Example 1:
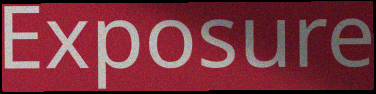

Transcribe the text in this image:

Exposure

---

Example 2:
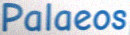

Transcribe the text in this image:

Palaeos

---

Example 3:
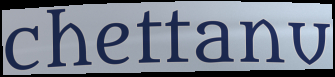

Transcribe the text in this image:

chettanu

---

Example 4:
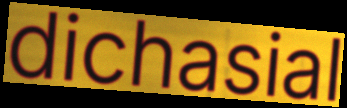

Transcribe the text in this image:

dichasial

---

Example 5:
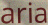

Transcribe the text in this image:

aria